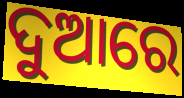
ଦୁଆରେ